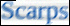
Scarps